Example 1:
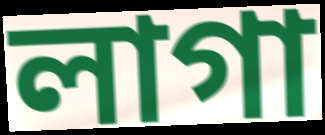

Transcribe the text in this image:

লাগা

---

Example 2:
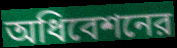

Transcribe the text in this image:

অধিবেশনের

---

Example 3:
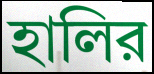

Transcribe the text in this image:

হালির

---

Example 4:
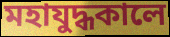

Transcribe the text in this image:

মহাযুদ্ধকালে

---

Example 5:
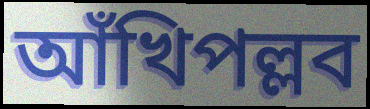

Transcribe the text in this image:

আঁখিপল্লব